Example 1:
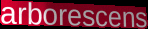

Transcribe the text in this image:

arborescens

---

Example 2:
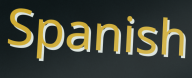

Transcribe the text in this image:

Spanish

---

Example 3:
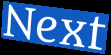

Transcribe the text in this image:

Next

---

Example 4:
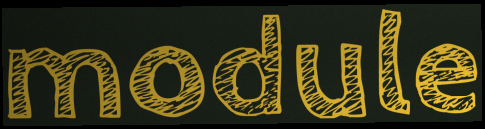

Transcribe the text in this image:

module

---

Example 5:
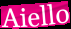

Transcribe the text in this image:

Aiello